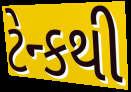
ટેન્કથી